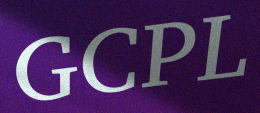
GCPL